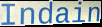
Indain